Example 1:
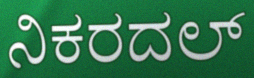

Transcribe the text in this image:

ನಿಕರದಲ್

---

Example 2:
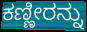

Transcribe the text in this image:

ಕಣ್ಣೀರನ್ನು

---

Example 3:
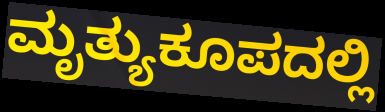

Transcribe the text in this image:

ಮೃತ್ಯುಕೂಪದಲ್ಲಿ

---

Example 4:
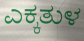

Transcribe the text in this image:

ಎಕ್ಕತುಳ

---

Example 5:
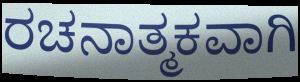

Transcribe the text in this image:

ರಚನಾತ್ಮಕವಾಗಿ